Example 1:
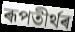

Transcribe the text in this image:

ৰূপতীৰ্থৰ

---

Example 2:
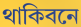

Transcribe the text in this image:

থাকিবনে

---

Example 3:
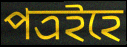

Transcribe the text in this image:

পত্ৰইহে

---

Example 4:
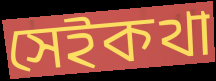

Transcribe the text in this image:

সেইকথা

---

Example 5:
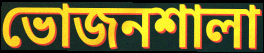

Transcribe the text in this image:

ভোজনশালা